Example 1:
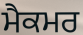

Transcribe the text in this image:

ਮੈਕਮਰ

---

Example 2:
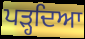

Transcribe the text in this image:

ਪੜ੍ਹਦਿਆ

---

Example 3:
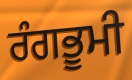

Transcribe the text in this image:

ਰੰਗਭੂਮੀ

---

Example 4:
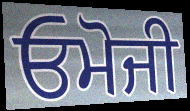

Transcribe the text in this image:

ਓਮੋਜੀ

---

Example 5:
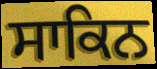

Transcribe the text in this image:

ਸਾਕਿਨ